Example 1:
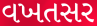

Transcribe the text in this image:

વખતસર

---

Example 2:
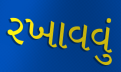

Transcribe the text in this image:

રખાવવું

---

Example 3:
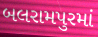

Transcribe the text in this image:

બલરામપુરમાં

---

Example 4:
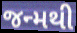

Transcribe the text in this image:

જન્મથી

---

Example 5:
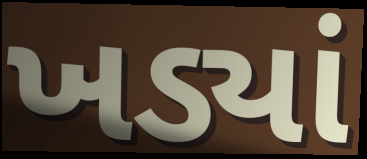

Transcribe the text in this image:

ખડ્યાં